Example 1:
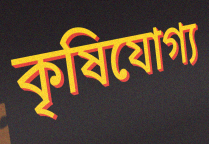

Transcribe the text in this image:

কৃষিযোগ্য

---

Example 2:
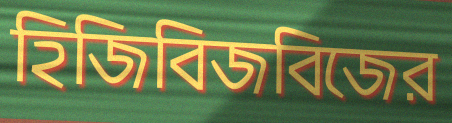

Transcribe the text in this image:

হিজিবিজবিজের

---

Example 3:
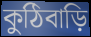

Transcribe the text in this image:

কুঠিবাড়ি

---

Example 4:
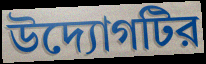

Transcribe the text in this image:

উদ্যোগটির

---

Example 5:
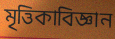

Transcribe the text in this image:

মৃত্তিকাবিজ্ঞান